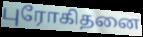
புரோகிதனை